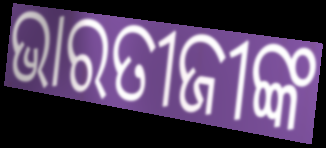
ଭାରତୀଜୀଙ୍କ